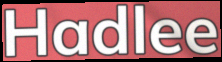
Hadlee